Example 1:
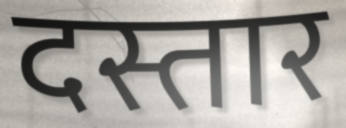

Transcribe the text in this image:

दस्तार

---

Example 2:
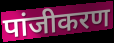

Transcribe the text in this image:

पांजीकरण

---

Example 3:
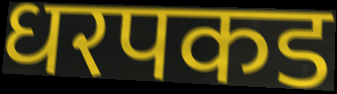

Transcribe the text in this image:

धरपकड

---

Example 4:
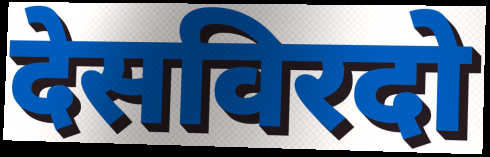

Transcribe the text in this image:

देसविरदो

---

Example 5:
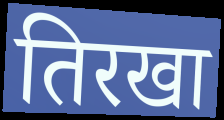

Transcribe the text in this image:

तिरखा